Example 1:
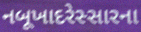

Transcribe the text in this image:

નબૂખાદરેસ્સારના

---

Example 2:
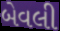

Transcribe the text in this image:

બેવલી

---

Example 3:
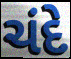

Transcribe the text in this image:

ચંદે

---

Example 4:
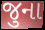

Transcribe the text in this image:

જુના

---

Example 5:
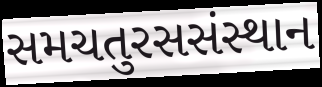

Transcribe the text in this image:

સમચતુરસસંસ્થાન